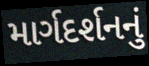
માર્ગદર્શનનું